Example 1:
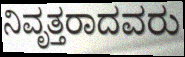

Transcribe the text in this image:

ನಿವೃತ್ತರಾದವರು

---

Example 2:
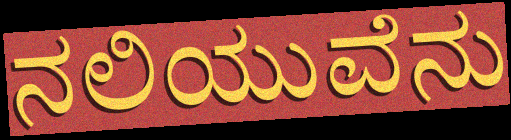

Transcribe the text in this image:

ನಲಿಯುವೆನು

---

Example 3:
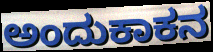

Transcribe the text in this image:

ಅಂದುಕಾಕನ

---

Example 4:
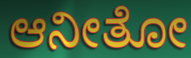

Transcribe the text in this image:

ಆನೀತೋ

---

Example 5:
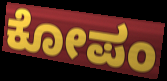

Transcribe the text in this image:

ಕೋಪಂ